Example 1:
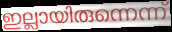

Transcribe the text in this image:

ഇല്ലായിരുന്നെന്ന്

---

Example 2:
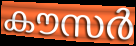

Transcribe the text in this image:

കൗസർ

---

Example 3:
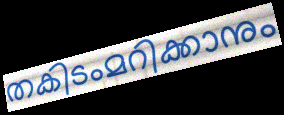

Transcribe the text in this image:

തകിടംമറിക്കാനും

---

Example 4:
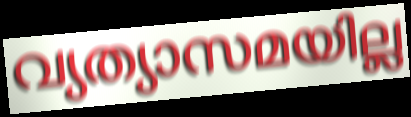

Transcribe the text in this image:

വ്യത്യാസമയില്ല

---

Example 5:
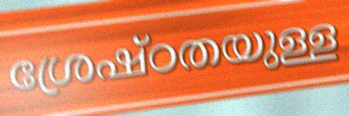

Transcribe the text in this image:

ശ്രേഷ്ഠതയുള്ള